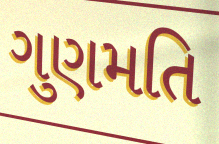
ગુણમતિ